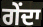
ਗੇਂਦਾ